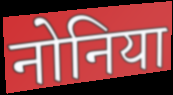
नोनिया